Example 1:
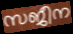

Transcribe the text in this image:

സജീന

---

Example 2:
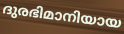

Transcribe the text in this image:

ദുരഭിമാനിയായ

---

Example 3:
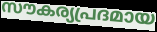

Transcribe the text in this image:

സൗകര്യപ്രദമായ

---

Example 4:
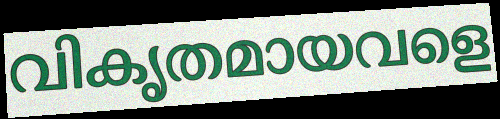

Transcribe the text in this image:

വികൃതമായവളെ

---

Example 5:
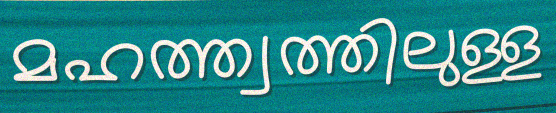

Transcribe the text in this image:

മഹത്ത്വത്തിലുള്ള